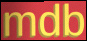
mdb